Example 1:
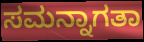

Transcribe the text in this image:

ಸಮನ್ನಾಗತಾ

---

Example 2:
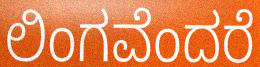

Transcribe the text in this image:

ಲಿಂಗವೆಂದರೆ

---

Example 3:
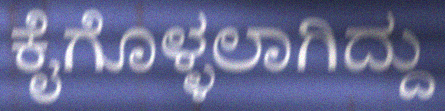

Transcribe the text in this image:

ಕೈಗೊಳ್ಳಲಾಗಿದ್ದು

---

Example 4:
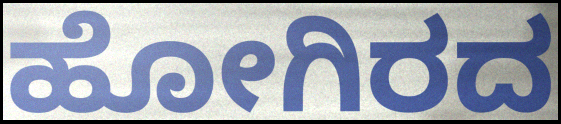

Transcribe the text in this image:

ಹೋಗಿರದ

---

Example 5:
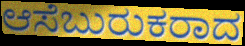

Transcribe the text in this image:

ಆಸೆಬುರುಕರಾದ